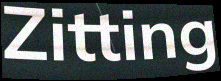
Zitting